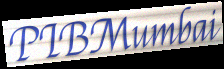
PIBMumbai